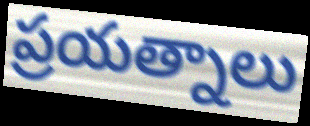
ప్రయత్నాలు